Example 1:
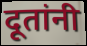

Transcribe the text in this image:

दूतांनी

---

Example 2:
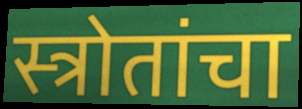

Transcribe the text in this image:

स्त्रोतांचा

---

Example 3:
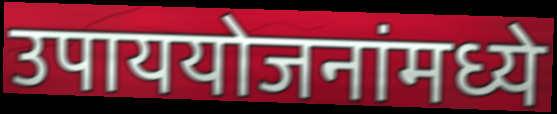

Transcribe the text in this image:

उपाययोजनांमध्ये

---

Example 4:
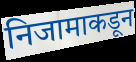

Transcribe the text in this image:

निजामाकडून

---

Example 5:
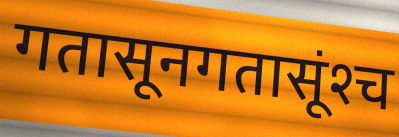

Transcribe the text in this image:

गतासूनगतासूंश्च